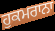
ਹੁਕਮਰਾਨਾ